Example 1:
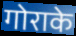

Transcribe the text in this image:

गोराके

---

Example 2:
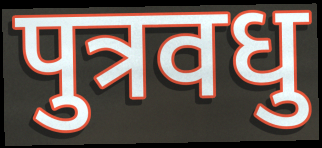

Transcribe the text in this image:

पुत्रवधु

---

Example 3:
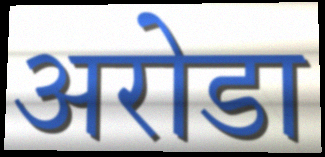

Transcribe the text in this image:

अरोडा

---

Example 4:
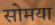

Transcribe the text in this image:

सोमया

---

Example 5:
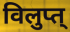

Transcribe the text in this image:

विलुप्त्